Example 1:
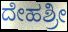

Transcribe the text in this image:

ದೇಹಶ್ರೀ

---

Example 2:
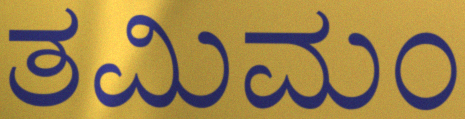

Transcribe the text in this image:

ತಮಿಮಂ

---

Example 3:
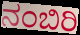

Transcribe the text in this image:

ನಂಬಿರಿ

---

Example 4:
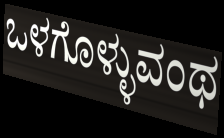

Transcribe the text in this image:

ಒಳಗೊಳ್ಳುವಂಥ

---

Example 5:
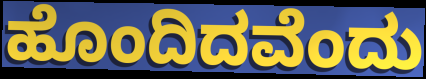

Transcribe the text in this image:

ಹೊಂದಿದವೆಂದು